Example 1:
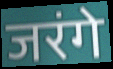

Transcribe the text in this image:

जरंगे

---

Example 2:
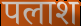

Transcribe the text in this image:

पलाश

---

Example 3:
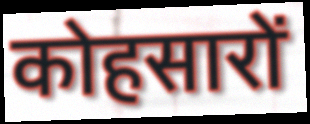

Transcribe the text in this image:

कोहसारों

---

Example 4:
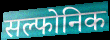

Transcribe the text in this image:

सल्फोनिक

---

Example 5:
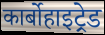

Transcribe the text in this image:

कार्बोहाइट्रेड